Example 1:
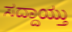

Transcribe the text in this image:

ಸದ್ದಾಯ್ತು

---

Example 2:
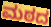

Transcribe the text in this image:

ಮಠದ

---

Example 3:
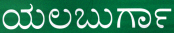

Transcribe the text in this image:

ಯಲಬುರ್ಗಾ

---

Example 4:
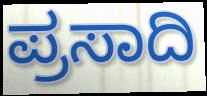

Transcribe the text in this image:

ಪ್ರಸಾದಿ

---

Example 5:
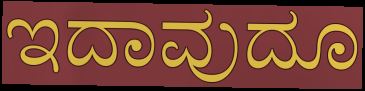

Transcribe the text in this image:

ಇದಾವುದೂ